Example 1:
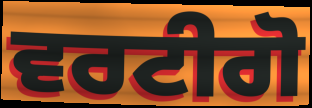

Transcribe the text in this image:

ਵਰਟੀਗੋ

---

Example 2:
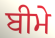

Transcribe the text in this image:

ਬੀਮੇ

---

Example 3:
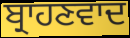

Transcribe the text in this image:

ਬ੍ਰਾਹਣਵਾਦ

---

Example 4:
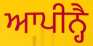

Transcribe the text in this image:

ਆਪੀਨ੍ਹ੍ਹੈ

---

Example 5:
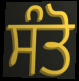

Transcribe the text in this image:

ਸੰਤੋ